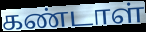
கண்டாள்